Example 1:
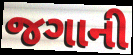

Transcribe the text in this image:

જગાની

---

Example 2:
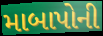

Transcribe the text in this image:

માબાપોની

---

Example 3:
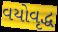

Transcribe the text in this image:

વયોવૃદ્ધ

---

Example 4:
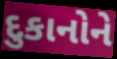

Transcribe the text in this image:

દુકાનોને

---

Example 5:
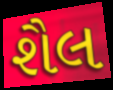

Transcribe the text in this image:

શૈલ